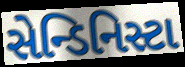
સેન્ડિનિસ્ટા